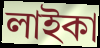
লাইকা